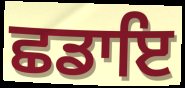
ਛਡਾਇ